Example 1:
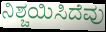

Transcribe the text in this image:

ನಿಶ್ಚಯಿಸಿದೆವು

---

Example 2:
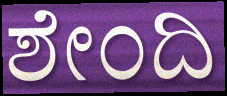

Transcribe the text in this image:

ಶೇಂದಿ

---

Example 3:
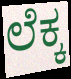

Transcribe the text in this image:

ಲೆಕ್ಕ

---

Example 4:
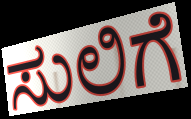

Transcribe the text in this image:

ಸುಲಿಗೆ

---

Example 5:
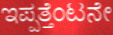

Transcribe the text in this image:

ಇಪ್ಪತ್ತೆಂಟನೇ